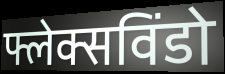
फ्लेक्सविंडो